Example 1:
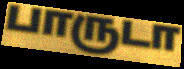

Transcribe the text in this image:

பாருடா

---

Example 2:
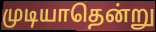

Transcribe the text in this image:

முடியாதென்று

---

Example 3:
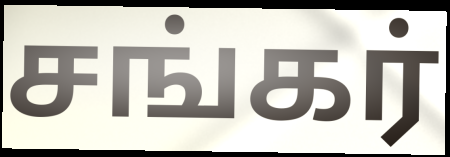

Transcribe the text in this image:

சங்கர்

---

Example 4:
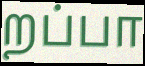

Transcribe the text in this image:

றப்பா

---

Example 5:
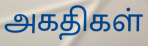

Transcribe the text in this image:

அகதிகள்